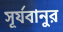
সূর্যবানুর